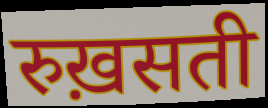
रुख़सती